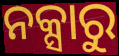
ନକ୍ସାରୁ